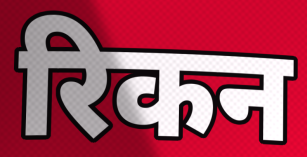
रिकन